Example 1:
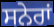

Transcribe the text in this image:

ਸਨੇਰਾਂ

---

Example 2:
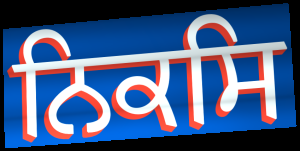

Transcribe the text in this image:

ਨਿਕਸਿ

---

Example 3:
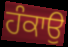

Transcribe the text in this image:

ਹੰਕਾਉ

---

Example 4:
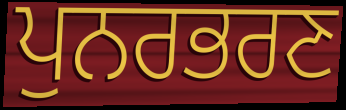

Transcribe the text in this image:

ਪੁਨਰਭਰਣ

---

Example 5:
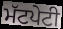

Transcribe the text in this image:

ਮੱਟਪੇਟੀ